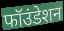
फॉउंडेशन